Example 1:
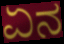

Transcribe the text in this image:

ಏನ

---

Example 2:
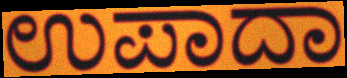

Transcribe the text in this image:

ಉಪಾದಾ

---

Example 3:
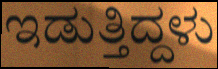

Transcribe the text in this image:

ಇಡುತ್ತಿದ್ದಳು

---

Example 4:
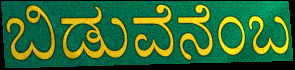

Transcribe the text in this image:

ಬಿಡುವೆನೆಂಬ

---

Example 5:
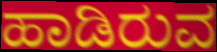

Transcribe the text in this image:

ಹಾಡಿರುವ